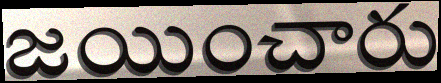
జయించారు